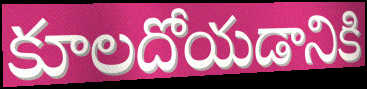
కూలదోయడానికి